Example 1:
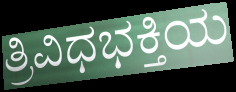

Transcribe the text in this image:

ತ್ರಿವಿಧಭಕ್ತಿಯ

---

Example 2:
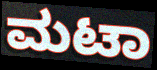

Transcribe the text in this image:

ಮಟಾ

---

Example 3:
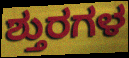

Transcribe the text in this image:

ಶ್ತುರಗಳ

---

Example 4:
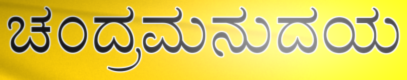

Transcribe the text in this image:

ಚಂದ್ರಮನುದಯ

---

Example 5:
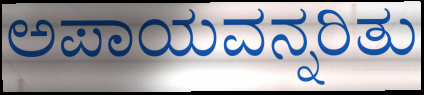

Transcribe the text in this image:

ಅಪಾಯವನ್ನರಿತು